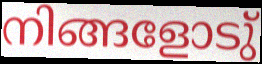
നിങ്ങളോടു്